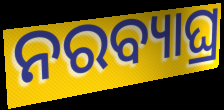
ନରବ୍ୟାଘ୍ର